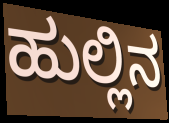
ಹುಲ್ಲಿನ